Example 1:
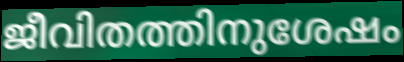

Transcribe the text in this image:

ജീവിതത്തിനുശേഷം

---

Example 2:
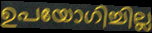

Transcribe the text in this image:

ഉപയോഗിച്ചില്ല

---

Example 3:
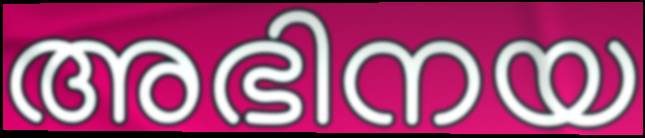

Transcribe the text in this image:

അഭിനയ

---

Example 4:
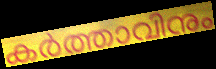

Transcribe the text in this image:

കർത്താവിനും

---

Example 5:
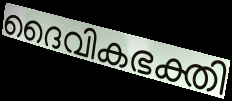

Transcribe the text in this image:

ദൈവികഭക്തി